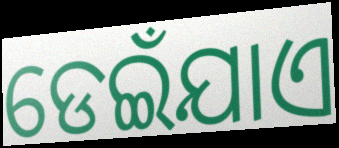
ଡେଇଁଯାଏ